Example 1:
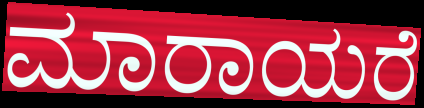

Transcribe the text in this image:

ಮಾರಾಯರೆ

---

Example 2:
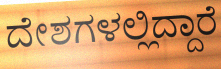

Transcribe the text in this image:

ದೇಶಗಳಲ್ಲಿದ್ದಾರೆ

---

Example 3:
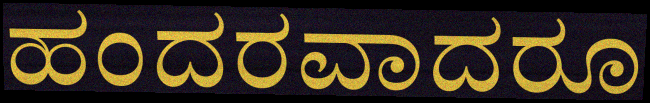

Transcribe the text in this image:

ಹಂದರವಾದರೂ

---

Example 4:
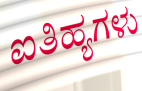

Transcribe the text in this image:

ಐತಿಹ್ಯಗಳು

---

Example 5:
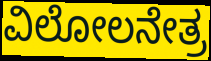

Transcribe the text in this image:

ವಿಲೋಲನೇತ್ರ